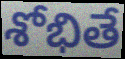
శోభితే